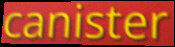
canister